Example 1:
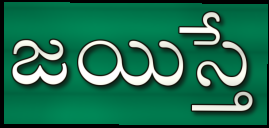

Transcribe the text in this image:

జయిస్తే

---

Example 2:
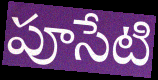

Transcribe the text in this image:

పూసేటి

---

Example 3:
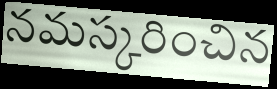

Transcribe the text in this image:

నమస్కరించిన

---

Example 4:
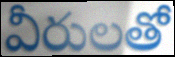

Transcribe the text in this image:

వీరులతో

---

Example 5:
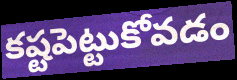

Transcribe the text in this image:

కష్టపెట్టుకోవడం